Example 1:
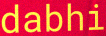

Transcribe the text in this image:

dabhi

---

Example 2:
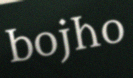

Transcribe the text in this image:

bojho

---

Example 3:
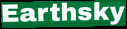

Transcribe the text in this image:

Earthsky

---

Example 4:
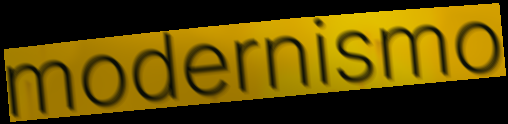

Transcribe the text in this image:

modernismo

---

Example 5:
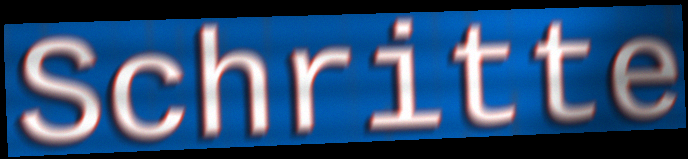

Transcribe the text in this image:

Schritte